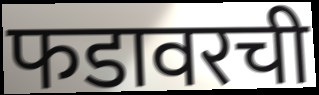
फडावरची